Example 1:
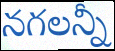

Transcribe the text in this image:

నగలన్నీ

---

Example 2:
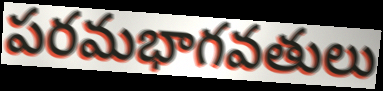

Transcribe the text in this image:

పరమభాగవతులు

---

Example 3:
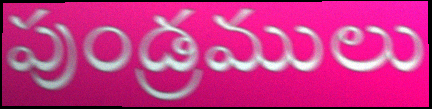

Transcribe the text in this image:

పుండ్రములు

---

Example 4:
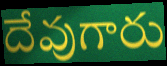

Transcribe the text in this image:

దేవుగారు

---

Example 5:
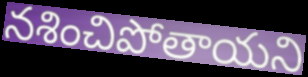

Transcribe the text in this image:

నశించిపోతాయని